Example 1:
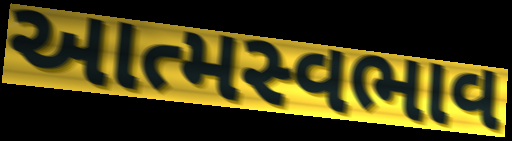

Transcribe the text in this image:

આત્મસ્વભાવ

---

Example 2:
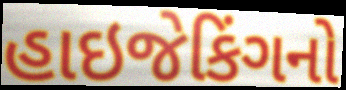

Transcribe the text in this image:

હાઇજેકિંગનો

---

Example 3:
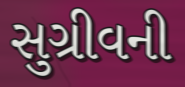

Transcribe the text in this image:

સુગ્રીવની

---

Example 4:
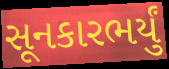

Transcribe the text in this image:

સૂનકારભર્યું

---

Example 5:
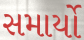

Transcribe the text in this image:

સમાર્યો